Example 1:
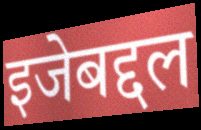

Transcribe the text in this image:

इजेबद्दल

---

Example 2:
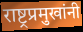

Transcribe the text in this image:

राष्ट्रप्रमुखांनी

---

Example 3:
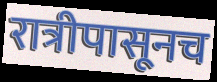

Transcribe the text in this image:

रात्रीपासूनच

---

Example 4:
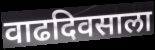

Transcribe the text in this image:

वाढदिवसाला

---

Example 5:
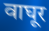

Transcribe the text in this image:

वाघूर